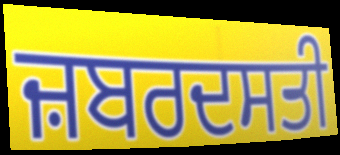
ਜ਼ਬਰਦਸਤੀ